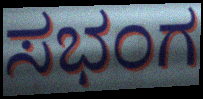
ಸಭಂಗ